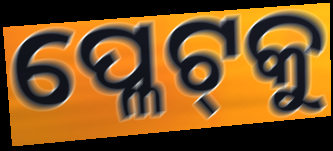
ପ୍ଳେଟ୍‌କୁ